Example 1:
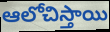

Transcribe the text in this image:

ఆలోచిస్తాయి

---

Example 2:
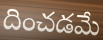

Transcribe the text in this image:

దించడమే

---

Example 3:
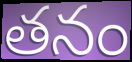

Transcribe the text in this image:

తనం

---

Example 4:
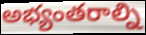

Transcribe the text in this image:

అభ్యంతరాల్ని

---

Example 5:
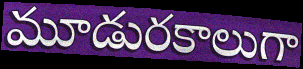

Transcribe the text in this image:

మూడురకాలుగా